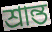
শ্রান্ত